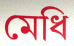
মেধি